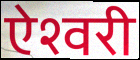
ऐश्वरी